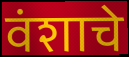
वंशाचे